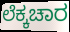
ಲೆಕ್ಕಚಾರ